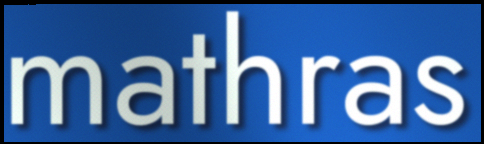
mathras